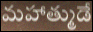
మహాత్ముడే